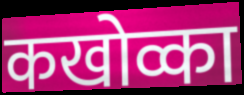
कखोव्का